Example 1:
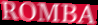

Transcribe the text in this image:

ROMBA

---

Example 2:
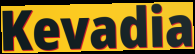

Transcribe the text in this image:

Kevadia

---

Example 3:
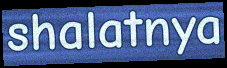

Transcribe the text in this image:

shalatnya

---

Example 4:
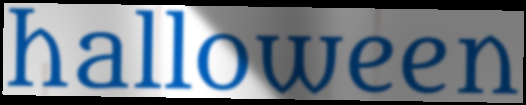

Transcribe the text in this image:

halloween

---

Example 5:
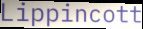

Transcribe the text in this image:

Lippincott